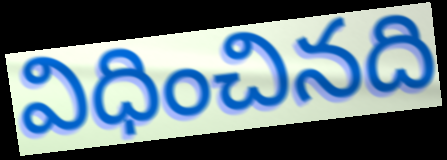
విధించినది